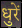
धुरें